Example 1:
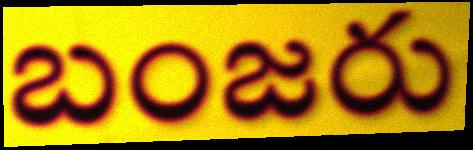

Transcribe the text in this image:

బంజరు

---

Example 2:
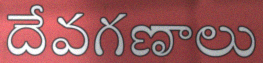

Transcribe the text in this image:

దేవగణాలు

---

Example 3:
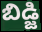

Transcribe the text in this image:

బిడ్జి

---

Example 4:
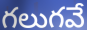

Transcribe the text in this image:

గలుగవే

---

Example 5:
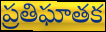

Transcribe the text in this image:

ప్రతిఘాతక